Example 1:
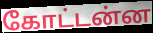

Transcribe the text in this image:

கோட்டன்ன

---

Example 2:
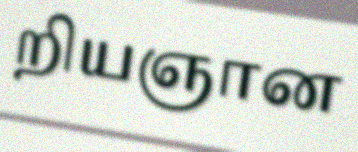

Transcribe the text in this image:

றியஞான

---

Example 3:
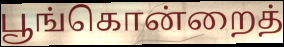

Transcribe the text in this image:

பூங்கொன்றைத்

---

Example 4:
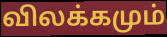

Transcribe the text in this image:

விலக்கமும்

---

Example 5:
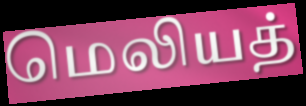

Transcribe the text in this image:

மெலியத்